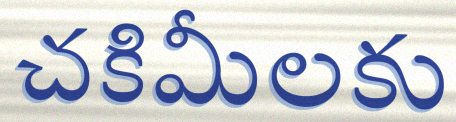
చకిమీలకు